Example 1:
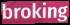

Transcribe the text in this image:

broking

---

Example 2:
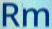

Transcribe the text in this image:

Rm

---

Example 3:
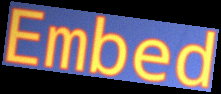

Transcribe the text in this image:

Embed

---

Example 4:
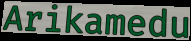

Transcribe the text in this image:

Arikamedu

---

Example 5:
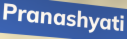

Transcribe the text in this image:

Pranashyati